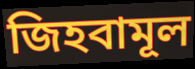
জিহবামূল